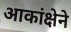
आकांक्षेने